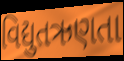
વિદ્યુતઋણતા